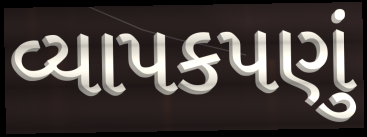
વ્યાપકપણું